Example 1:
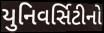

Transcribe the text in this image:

યુનિવર્સિટીનો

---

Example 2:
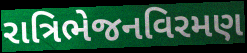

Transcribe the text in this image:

રાત્રિભેજનવિરમણ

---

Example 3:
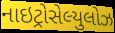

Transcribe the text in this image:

નાઇટ્રોસેલ્યુલોઝ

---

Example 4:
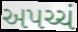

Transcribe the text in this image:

અપચ્ચં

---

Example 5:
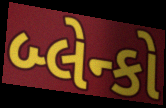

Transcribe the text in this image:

બ્લેન્કો